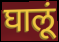
घालूं